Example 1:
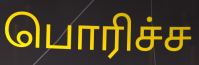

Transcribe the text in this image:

பொரிச்ச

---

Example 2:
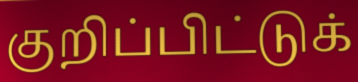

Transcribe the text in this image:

குறிப்பிட்டுக்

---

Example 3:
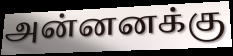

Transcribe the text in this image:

அன்னனக்கு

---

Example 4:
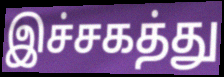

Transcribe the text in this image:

இச்சகத்து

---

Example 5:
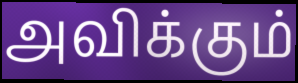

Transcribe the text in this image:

அவிக்கும்